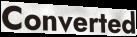
Converted